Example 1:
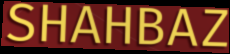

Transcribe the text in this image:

SHAHBAZ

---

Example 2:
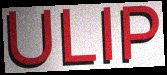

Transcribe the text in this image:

ULIP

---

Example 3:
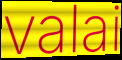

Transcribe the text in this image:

valai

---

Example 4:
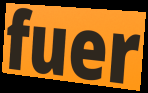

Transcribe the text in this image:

fuer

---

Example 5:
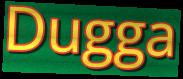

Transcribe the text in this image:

Dugga